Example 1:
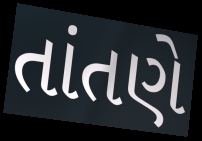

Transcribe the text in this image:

તાંતણે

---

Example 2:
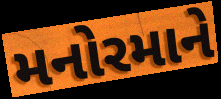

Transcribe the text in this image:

મનોરમાને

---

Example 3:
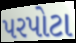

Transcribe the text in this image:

પરપોટા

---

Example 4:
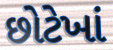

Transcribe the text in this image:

છોટેખાં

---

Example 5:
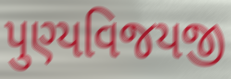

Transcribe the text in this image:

પુણ્યવિજયજી